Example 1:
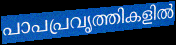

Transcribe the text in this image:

പാപപ്രവൃത്തികളിൽ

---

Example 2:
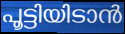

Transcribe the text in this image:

പൂട്ടിയിടാൻ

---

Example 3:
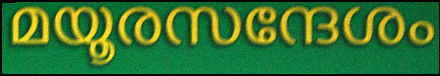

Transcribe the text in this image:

മയൂരസന്ദേശം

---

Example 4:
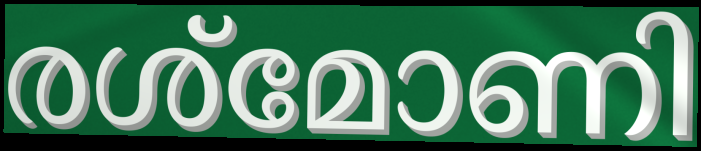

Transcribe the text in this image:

രശ്മോണി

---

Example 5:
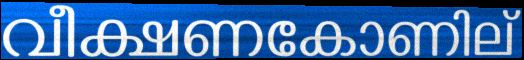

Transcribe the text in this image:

വീക്ഷണകോണില്